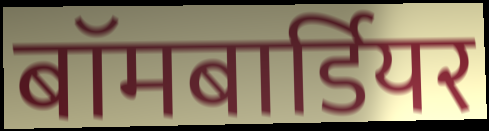
बॉमबार्डियर